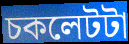
চকলেটটা